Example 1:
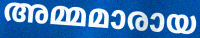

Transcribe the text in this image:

അമ്മമാരായ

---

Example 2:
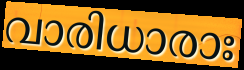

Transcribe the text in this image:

വാരിധാരാഃ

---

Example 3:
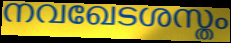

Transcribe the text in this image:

നവഖേടശസ്തം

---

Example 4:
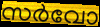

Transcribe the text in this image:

സർവോ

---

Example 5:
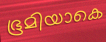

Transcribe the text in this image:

ഭൂമിയാകെ